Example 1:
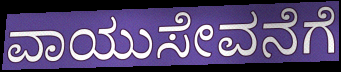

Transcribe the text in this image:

ವಾಯುಸೇವನೆಗೆ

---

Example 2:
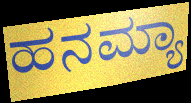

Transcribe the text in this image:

ಹನಮ್ಯಾ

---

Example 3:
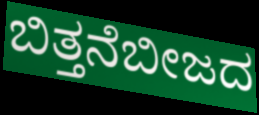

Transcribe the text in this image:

ಬಿತ್ತನೆಬೀಜದ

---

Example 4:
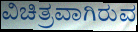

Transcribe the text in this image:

ವಿಚಿತ್ರವಾಗಿರುವ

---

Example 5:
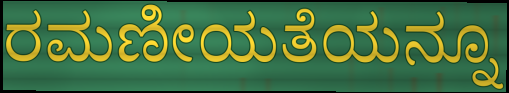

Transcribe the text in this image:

ರಮಣೀಯತೆಯನ್ನೂ